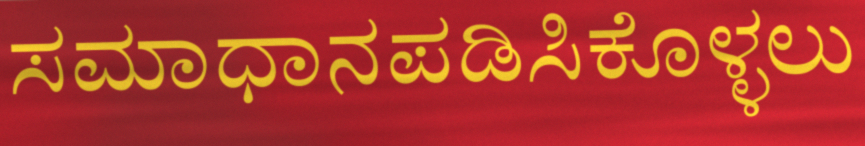
ಸಮಾಧಾನಪಡಿಸಿಕೊಳ್ಳಲು